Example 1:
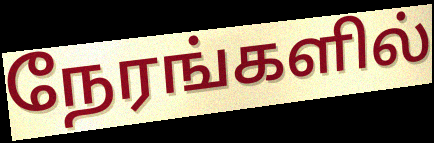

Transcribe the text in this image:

நேரங்களில்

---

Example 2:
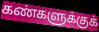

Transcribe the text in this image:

கண்களுக்குக்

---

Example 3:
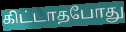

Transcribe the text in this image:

கிட்டாதபோது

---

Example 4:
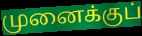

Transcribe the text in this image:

முனைக்குப்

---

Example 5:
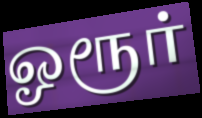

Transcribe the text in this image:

ஓரூர்